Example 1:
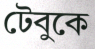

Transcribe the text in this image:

টেবুকে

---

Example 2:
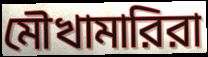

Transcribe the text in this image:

মৌখামারিরা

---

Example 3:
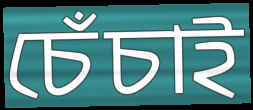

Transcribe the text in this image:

চেঁচাই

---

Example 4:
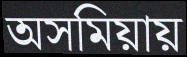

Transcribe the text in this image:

অসমিয়ায়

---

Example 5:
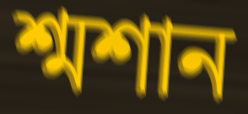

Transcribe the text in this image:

শ্মশান